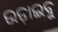
ଉଡ଼ାଇବୁ